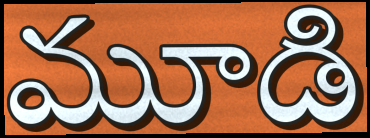
మూడి